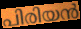
പിരിയൻ